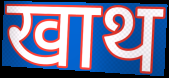
खाथ